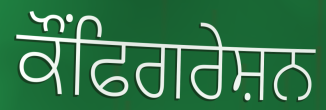
ਕੌਂਫਿਗਰੇਸ਼ਨ